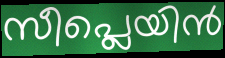
സീപ്ലെയിൻ